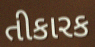
તીકારક